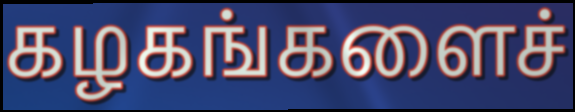
கழகங்களைச்